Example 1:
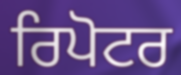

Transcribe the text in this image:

ਰਿਪੋਟਰ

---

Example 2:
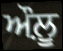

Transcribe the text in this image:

ਔਲ਼ੂ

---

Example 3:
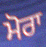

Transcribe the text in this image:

ਮੋਰਾ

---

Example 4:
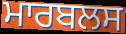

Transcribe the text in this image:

ਮਾਰਬਲਸ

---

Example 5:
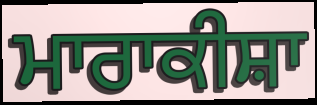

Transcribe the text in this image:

ਮਾਰਾਕੀਸ਼ਾ